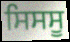
ਸਿਸਸੂ